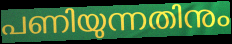
പണിയുന്നതിനും